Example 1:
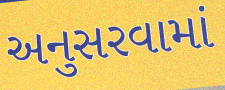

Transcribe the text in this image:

અનુસરવામાં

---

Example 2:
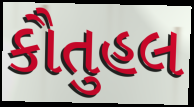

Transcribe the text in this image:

કૌતુહલ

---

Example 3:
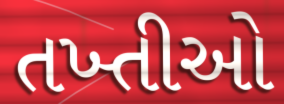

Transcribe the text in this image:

તખ્તીઓ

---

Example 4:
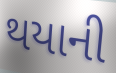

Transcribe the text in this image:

થયાની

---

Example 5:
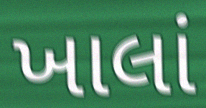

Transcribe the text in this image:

ખાલાં